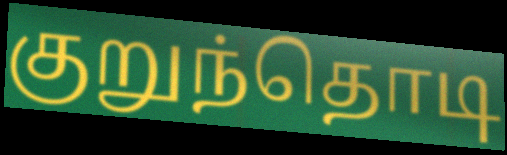
குறுந்தொடி